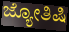
ಜ್ಯೋತಿಷಿ